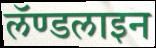
लॅण्डलाइन